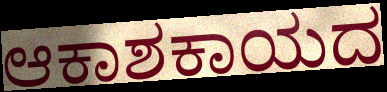
ಆಕಾಶಕಾಯದ